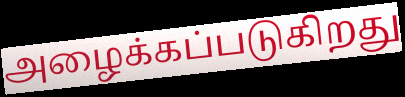
அழைக்கப்படுகிறது